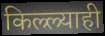
किल्ल्याही